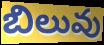
బిలువు